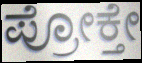
ಪ್ರೋಕ್ತೇ